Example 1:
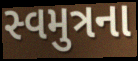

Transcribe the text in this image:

સ્વમુત્રના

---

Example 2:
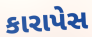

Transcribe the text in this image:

કારાપેસ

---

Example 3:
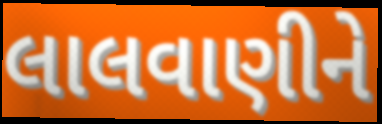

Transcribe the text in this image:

લાલવાણીને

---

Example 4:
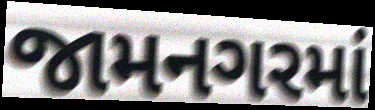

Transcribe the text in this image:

જામનગરમાં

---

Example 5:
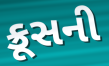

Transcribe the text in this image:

ક્રૂસની